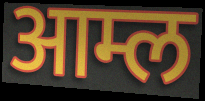
आम्‍ल